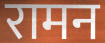
रामन